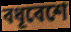
বধূবেশে